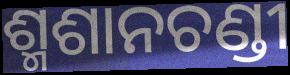
ଶ୍ମଶାନଚଣ୍ଡୀ